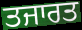
ਤਜਾਰਤ